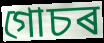
গোচৰ